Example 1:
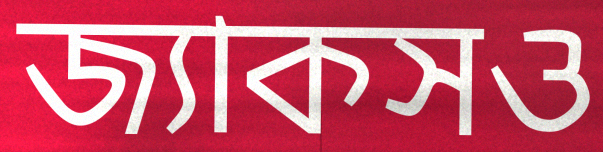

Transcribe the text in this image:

জ্যাকসও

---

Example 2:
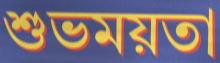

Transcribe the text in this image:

শুভময়তা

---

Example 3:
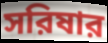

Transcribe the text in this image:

সরিষার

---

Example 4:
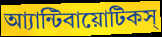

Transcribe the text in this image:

আ্যান্টিবায়োটিকস্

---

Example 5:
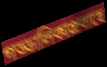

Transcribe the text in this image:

গড্ডালিকাপ্রবাহে